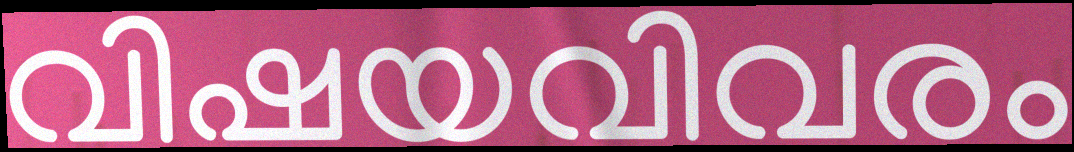
വിഷയവിവരം